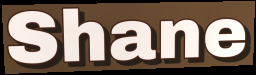
Shane